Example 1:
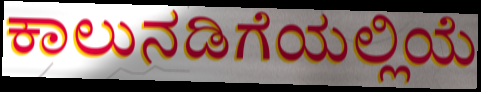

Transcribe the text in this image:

ಕಾಲುನಡಿಗೆಯಲ್ಲಿಯೆ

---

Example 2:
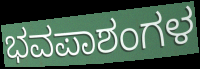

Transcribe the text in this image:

ಭವಪಾಶಂಗಳ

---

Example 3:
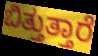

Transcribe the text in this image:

ಬಿತ್ತುತ್ತಾರೆ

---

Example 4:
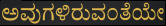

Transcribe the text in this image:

ಅವುಗಳಿರುವಂತೆಯೇ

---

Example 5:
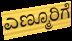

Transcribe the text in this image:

ಎಣ್ಮೂರಿಗೆ